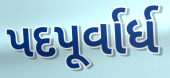
પદપૂર્વાર્ધ